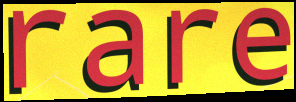
rare